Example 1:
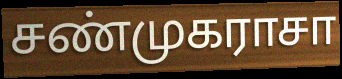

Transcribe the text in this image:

சண்முகராசா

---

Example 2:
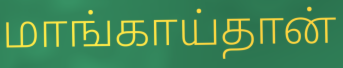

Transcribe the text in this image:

மாங்காய்தான்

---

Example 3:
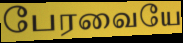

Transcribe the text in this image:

பேரவையே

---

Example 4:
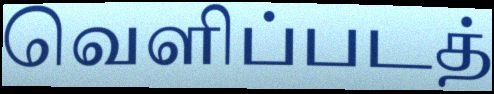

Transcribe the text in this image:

வெளிப்படத்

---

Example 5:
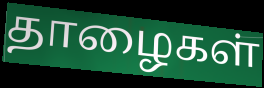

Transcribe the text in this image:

தாழைகள்